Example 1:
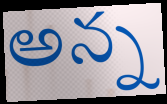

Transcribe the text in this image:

అన్న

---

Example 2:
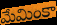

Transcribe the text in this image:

మేమింకా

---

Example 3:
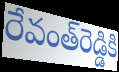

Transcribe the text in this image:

రేవంత్‌రెడ్డికి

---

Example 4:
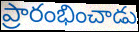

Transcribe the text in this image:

ప్రారంభించాడు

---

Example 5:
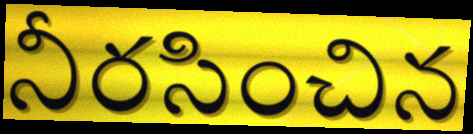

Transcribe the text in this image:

నీరసించిన